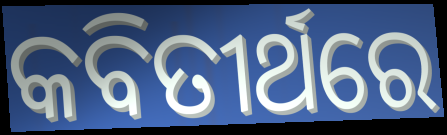
କବିତୀର୍ଥରେ